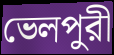
ভেলপুরী